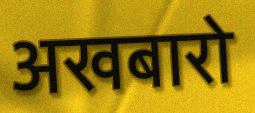
अखबारो